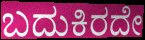
ಬದುಕಿರದೇ